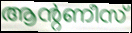
ആന്റണീസ്